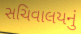
સચિવાલયનું